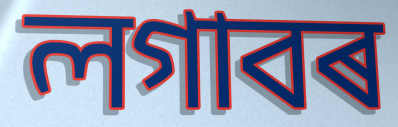
লগাবৰ